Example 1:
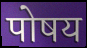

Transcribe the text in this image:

पोषय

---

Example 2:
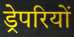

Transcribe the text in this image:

ड्रेपरियों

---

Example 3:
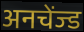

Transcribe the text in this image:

अनचेंज्ड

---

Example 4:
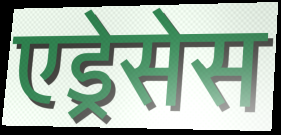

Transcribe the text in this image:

एड्रेसेस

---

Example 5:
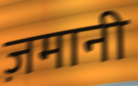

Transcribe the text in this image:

ज़मानी